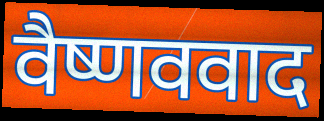
वैष्णववाद